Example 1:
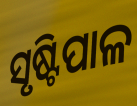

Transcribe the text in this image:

ସୃଷ୍ଟିପାଳ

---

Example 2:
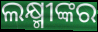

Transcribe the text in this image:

ଲକ୍ଷ୍ମୀଙ୍କର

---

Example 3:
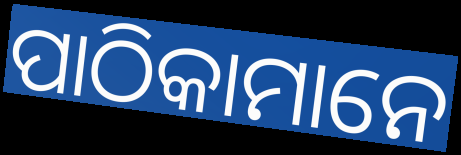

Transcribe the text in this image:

ପାଠିକାମାନେ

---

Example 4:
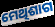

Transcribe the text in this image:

ମେଥିଶାଗ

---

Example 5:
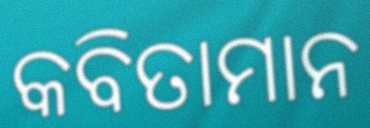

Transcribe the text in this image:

କବିତାମାନ